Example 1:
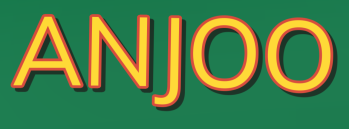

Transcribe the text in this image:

ANJOO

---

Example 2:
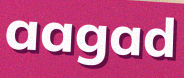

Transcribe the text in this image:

aagad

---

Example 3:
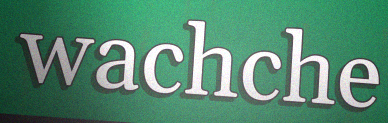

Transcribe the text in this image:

wachche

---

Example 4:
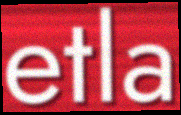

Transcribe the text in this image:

etla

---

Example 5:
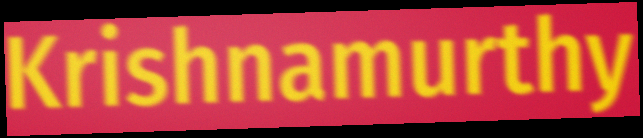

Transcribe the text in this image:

Krishnamurthy